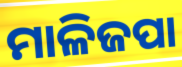
ମାଳିଜପା